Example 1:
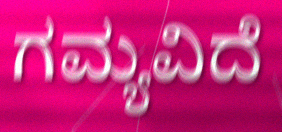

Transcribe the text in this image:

ಗಮ್ಯವಿದೆ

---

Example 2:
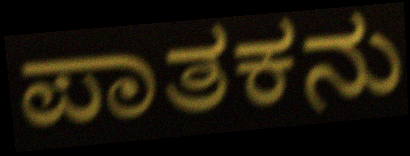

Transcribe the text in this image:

ಪಾತಕನು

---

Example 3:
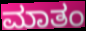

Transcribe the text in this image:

ಮಾತಂ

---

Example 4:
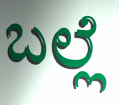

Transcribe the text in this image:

ಬಲ್ಲೆ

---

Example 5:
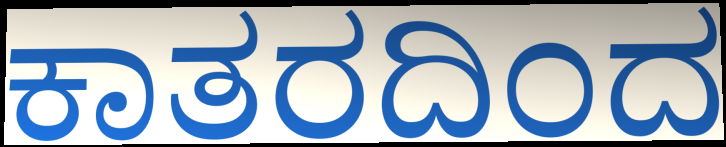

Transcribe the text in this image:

ಕಾತರದಿಂದ